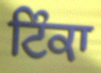
ਟਿੰਕਾ